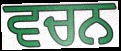
ਵਚਨ